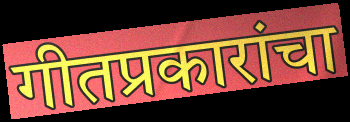
गीतप्रकारांचा